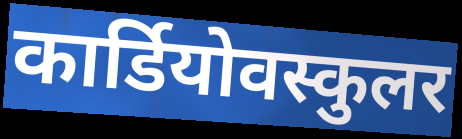
कार्डियोवस्कुलर